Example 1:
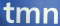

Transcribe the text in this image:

tmn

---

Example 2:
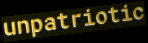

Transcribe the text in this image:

unpatriotic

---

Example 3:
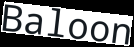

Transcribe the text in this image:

Baloon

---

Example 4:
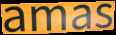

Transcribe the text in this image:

amas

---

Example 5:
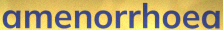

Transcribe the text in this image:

amenorrhoea